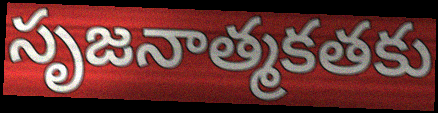
సృజనాత్మకతకు